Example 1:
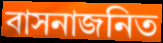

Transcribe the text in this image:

বাসনাজনিত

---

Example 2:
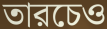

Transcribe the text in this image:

তারচেও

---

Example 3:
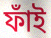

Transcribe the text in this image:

ফাঁই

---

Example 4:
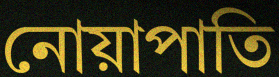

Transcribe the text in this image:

নোয়াপাতি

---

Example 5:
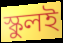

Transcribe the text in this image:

স্কুলই